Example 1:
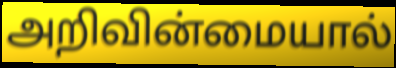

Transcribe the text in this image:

அறிவின்மையால்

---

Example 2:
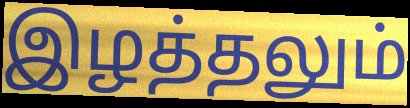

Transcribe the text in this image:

இழத்தலும்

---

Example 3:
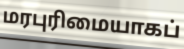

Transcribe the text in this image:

மரபுரிமையாகப்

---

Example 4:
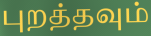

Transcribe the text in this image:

புறத்தவும்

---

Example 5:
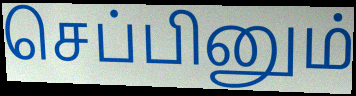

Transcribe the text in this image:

செப்பினும்